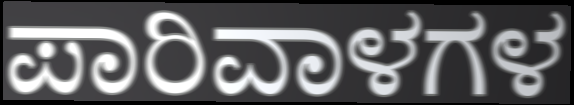
ಪಾರಿವಾಳಗಳ